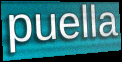
puella